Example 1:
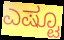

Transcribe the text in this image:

ಎಷ್ಟೂ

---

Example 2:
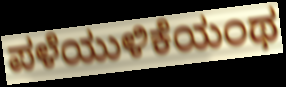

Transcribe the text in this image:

ಪಳೆಯುಳಿಕೆಯಂಥ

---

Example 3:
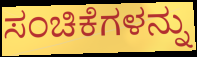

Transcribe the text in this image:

ಸಂಚಿಕೆಗಳನ್ನು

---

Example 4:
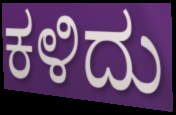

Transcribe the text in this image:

ಕಳಿದು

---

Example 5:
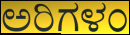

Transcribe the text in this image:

ಅರಿಗಳಂ